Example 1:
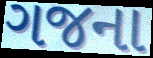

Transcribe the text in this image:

ગજના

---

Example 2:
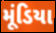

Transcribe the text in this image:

મૂંડિયા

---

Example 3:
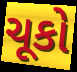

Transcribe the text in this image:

ચૂકો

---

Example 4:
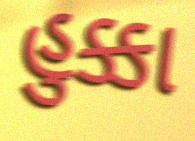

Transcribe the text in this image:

હુક્કા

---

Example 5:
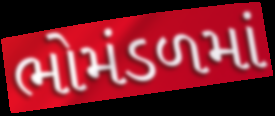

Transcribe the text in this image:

ભોમંડળમાં